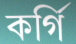
কর্গি